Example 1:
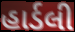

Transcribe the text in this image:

હાર્ડલી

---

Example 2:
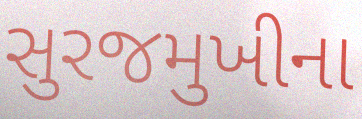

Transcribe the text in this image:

સુરજમુખીના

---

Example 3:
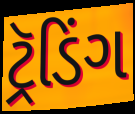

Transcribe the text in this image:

ટ્રૅડિંગ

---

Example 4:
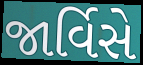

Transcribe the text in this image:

જાર્વિસે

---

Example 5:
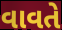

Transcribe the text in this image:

વાવતે